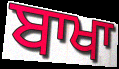
ਬਾਖਾ